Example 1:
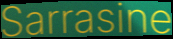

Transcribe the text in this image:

Sarrasine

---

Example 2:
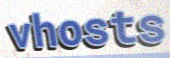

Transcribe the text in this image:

vhosts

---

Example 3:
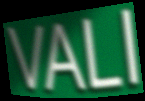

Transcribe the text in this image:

VALI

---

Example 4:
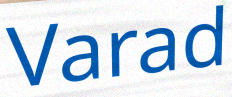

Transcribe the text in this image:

Varad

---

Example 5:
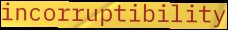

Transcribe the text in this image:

incorruptibility